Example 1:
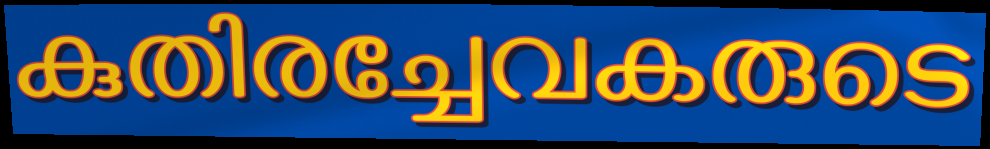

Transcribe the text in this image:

കുതിരച്ചേവകരുടെ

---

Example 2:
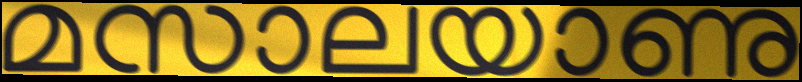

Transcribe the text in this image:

മസാലയാണു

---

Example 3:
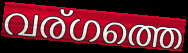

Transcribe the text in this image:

വര്ഗത്തെ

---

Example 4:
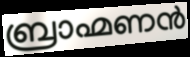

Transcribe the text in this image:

ബ്രാഹ്മണൻ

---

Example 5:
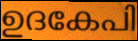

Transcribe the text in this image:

ഉദകേപി